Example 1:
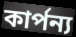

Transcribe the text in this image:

কার্পন্য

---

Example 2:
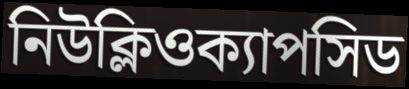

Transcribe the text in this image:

নিউক্লিওক্যাপসিড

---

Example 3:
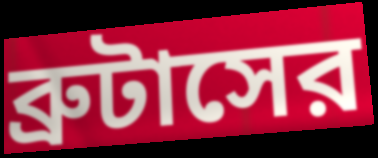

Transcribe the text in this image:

ব্রুটাসের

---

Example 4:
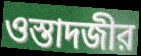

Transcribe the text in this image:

ওস্তাদজীর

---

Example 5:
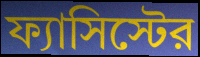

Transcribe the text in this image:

ফ্যাসিস্টের